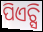
ପିଏଚ୍ସି